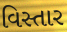
વિસ્તાર